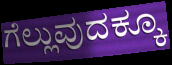
ಗೆಲ್ಲುವುದಕ್ಕೂ